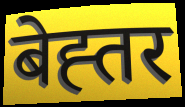
बेह्तर